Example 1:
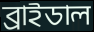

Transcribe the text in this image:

ব্রাইডাল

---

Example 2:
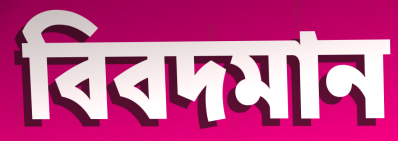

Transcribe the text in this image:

বিবদমান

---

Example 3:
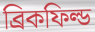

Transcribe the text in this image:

ব্রিকফিল্ড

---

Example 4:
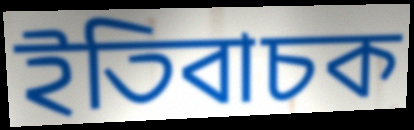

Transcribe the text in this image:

ইতিবাচক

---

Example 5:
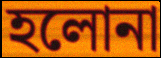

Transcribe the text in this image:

হলোনা